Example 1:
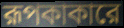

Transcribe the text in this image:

রূপকাকারে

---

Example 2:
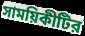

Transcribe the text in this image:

সাময়িকীটির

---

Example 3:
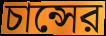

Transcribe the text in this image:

চান্সের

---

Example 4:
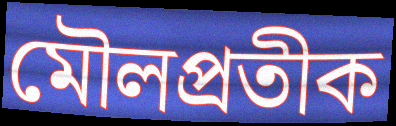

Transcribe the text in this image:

মৌলপ্রতীক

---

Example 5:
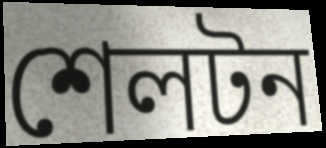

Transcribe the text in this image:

শেলটন